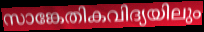
സാങ്കേതികവിദ്യയിലും